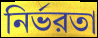
নির্ভরতা